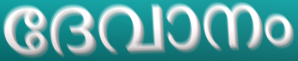
ദേവാനം